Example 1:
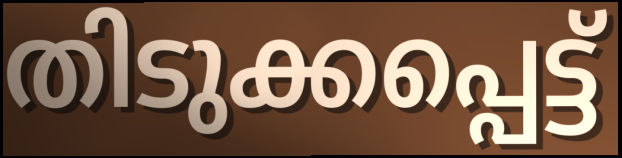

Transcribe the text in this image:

തിടുക്കപ്പെട്ട്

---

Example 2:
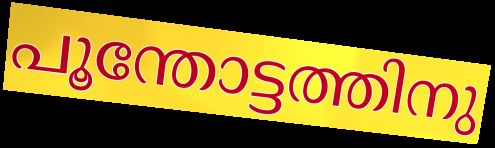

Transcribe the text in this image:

പൂന്തോട്ടത്തിനു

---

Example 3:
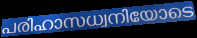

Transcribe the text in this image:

പരിഹാസധ്വനിയോടെ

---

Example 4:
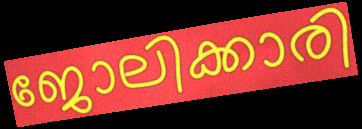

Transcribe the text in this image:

ജോലിക്കാരി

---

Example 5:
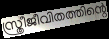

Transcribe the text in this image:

സ്ത്രീജീവിതത്തിന്റെ